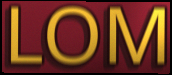
LOM